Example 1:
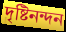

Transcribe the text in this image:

দৃষ্টিনন্দন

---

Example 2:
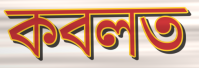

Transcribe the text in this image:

কবলত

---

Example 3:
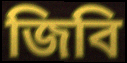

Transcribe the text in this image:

জিবি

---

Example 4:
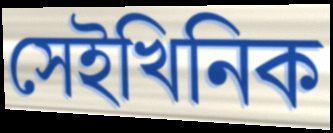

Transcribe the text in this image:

সেইখিনিক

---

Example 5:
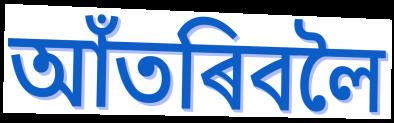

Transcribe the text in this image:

আঁতৰিবলৈ